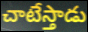
చాటేస్తాడు